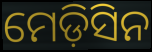
ମେଡ଼ିସିନ